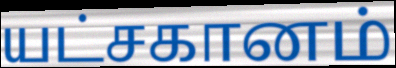
யட்சகானம்